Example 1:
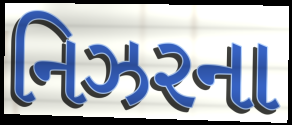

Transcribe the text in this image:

નિઝરના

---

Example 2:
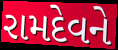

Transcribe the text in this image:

રામદેવને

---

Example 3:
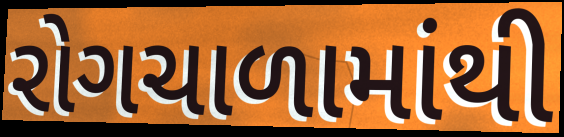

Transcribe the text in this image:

રોગચાળામાંથી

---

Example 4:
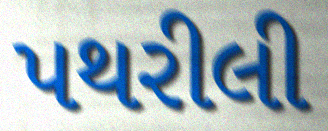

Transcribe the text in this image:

પથરીલી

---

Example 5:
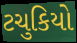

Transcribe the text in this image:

ટચુકિયો